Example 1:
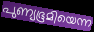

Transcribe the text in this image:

പുണ്യഭൂമിയെന്ന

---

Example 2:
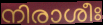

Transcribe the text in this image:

നിരാശീഃ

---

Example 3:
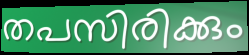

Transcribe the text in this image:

തപസിരിക്കും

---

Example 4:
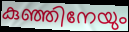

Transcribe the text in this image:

കുഞ്ഞിനേയും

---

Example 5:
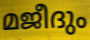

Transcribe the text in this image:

മജീദും